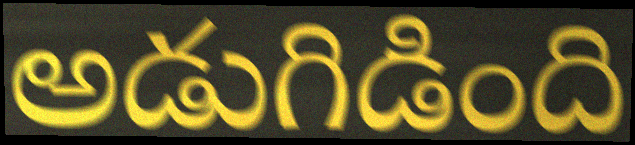
అడుగిడింది